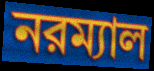
নরম্যাল